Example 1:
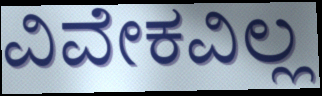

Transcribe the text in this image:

ವಿವೇಕವಿಲ್ಲ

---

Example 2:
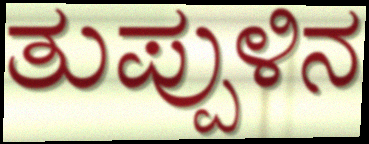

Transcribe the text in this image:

ತುಪ್ಪುಳಿನ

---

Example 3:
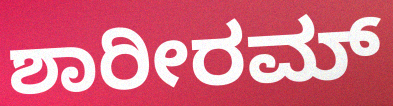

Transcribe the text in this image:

ಶಾರೀರಮ್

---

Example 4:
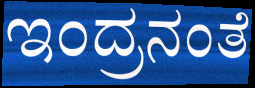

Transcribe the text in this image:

ಇಂದ್ರನಂತೆ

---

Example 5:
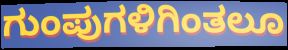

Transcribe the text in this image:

ಗುಂಪುಗಳಿಗಿಂತಲೂ